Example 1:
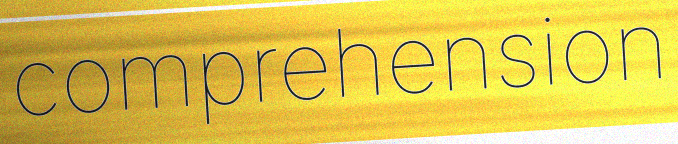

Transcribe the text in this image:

comprehension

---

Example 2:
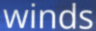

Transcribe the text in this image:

winds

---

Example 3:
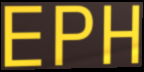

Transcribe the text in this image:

EPH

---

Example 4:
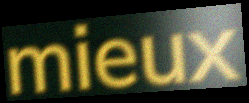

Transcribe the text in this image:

mieux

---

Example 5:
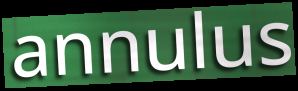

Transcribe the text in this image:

annulus